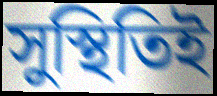
সুস্থিতিই